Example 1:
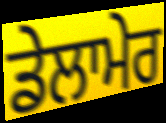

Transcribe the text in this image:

ਡੇਲਾਮੇਰ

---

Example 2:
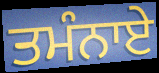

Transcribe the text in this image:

ਤਮੰਨਾਏ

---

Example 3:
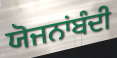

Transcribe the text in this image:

ਯੋਜਨਾਂਬੰਦੀ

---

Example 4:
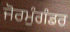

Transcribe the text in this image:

ਜੋਰਮੁੰਗੰਡਰ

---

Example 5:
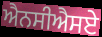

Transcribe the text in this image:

ਐਨਸੀਐਸਏ